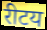
रीटय